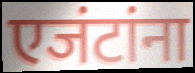
एजंटांना